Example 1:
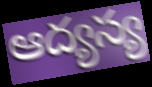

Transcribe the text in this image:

ఆద్యస్య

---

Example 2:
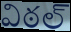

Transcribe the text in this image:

విఠల్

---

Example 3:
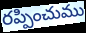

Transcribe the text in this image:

రప్పించుము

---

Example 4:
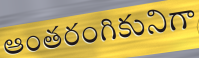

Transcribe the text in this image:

ఆంతరంగికునిగా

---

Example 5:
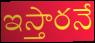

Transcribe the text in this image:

ఇస్తారనే